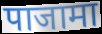
पाजामा